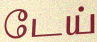
டேய்